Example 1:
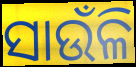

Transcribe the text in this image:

ସାଉଁଳି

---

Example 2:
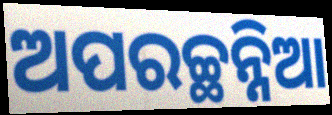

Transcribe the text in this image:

ଅପରଚ୍ଛନ୍ନିଆ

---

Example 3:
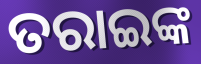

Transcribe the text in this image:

ତରାଇଙ୍କ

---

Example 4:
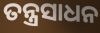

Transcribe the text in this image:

ତନ୍ତ୍ରସାଧନ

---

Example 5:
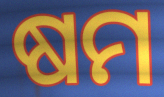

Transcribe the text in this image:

ଷମ